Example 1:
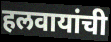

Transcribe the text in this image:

हलवायांची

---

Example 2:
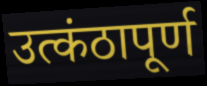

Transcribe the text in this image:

उत्कंठापूर्ण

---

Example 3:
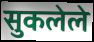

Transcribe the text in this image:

सुकलेले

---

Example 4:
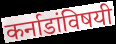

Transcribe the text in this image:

कर्नाडांविषयी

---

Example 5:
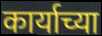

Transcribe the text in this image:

कार्याच्या